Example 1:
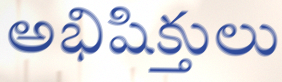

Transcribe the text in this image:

అభిషిక్తులు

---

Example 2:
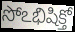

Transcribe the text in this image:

సోఽభిషిక్తో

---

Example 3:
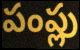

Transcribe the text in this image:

పంప్లు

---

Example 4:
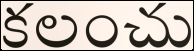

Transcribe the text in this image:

కలంచు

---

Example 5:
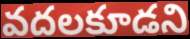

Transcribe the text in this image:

వదలకూడని